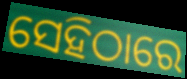
ସେହିଠାରେ